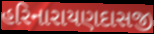
હરિનારાયણદાસજી